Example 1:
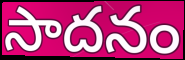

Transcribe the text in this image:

సాదనం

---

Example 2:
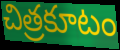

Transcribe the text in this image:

చిత్రకూటం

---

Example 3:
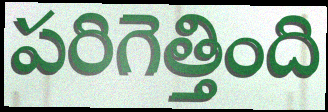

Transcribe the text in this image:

పరిగెత్తింది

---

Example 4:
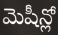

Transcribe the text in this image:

మెషీన్లో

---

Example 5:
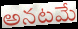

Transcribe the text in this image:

అనటమే